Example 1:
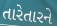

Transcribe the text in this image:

તારેતારને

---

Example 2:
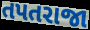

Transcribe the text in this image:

તપતરાજા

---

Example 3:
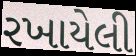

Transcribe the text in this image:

રખાયેલી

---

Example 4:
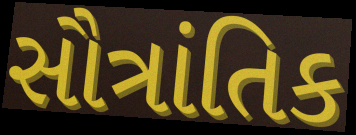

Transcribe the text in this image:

સૌત્રાંતિક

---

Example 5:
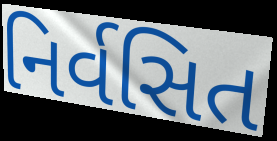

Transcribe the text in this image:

નિર્વસિત